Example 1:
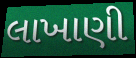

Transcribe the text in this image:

લાખાણી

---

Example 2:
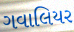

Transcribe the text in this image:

ગવાલિયર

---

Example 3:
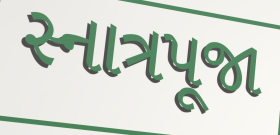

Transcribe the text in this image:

સ્નાત્રપૂજા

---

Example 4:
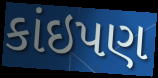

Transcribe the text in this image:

કાંઇપણ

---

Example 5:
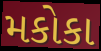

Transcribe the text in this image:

મકોકા